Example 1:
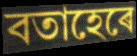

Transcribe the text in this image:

বতাহেৰে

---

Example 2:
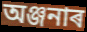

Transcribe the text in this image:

অঞ্জনাৰ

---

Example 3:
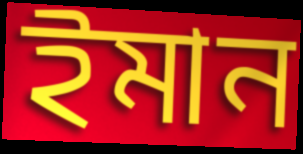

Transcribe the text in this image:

ইমান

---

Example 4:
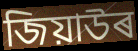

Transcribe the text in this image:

জিয়াউৰ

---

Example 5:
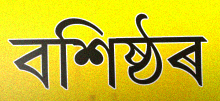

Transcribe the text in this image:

বশিষ্ঠৰ